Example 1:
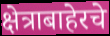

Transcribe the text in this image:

क्षेत्राबाहेरचे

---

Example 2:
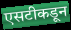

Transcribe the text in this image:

एसटीकडून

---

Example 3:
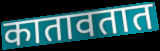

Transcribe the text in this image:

कातावतात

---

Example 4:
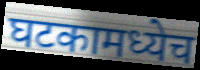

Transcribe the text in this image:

घटकामध्येच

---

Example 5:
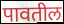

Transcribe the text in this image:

पावतील